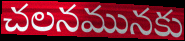
చలనమునకు